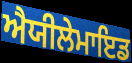
ਐਯੀਲੇਮਾਇਡ